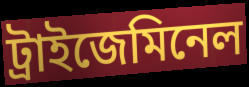
ট্ৰাইজেমিনেল